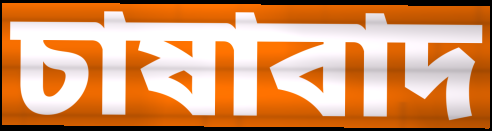
চাষাবাদ